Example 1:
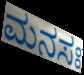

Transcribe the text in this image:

ಮನಸಃ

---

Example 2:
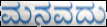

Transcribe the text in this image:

ಮನವದು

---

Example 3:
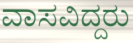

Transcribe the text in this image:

ವಾಸವಿದ್ದರು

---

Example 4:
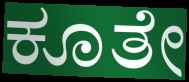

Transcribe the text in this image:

ಕೂತೇ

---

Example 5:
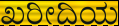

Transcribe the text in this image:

ಖರೀದಿಯ